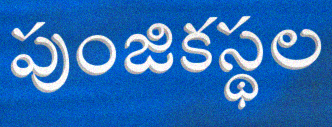
పుంజికస్థల